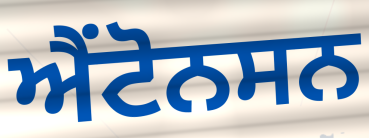
ਐਂਟੋਨਸਨ